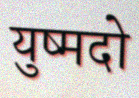
युष्मदो